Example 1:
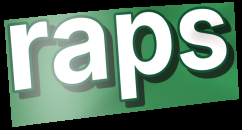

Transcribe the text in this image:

raps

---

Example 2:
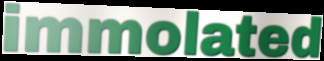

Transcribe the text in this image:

immolated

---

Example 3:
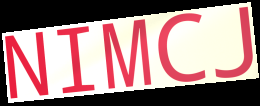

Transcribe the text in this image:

NIMCJ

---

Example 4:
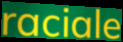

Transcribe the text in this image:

raciale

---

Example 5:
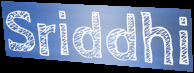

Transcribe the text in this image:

Sriddhi